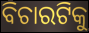
ବିଚାରଟିକୁ